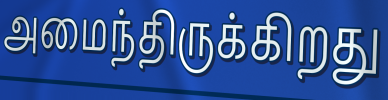
அமைந்திருக்கிறது